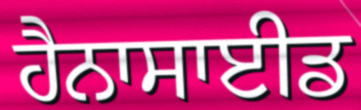
ਹੈਨਾਸਾਈਡ